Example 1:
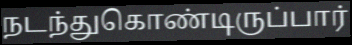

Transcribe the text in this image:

நடந்துகொண்டிருப்பார்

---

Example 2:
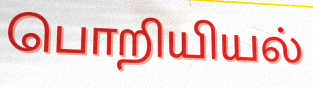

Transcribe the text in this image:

பொறியியல்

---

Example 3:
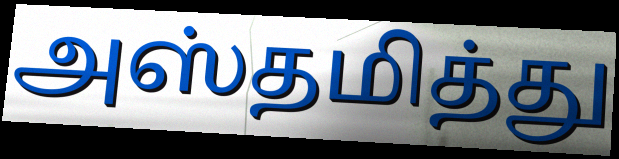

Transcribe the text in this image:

அஸ்தமித்து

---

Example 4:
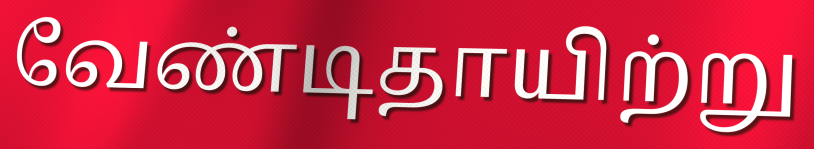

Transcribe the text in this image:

வேண்டிதாயிற்று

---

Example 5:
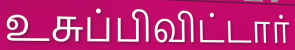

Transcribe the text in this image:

உசுப்பிவிட்டார்